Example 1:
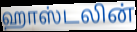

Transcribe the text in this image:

ஹாஸ்டலின்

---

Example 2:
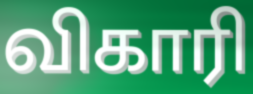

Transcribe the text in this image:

விகாரி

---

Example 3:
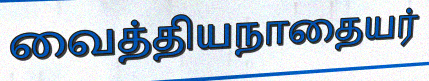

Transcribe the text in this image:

வைத்தியநாதையர்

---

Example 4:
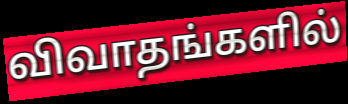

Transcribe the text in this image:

விவாதங்களில்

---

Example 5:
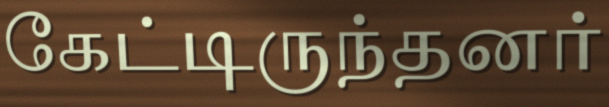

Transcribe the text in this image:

கேட்டிருந்தனர்